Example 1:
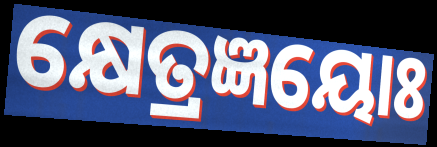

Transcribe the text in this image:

କ୍ଷେତ୍ରଜ୍ଞୟୋଃ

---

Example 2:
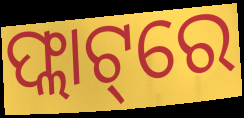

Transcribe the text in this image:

ଫ୍ଲାଟ୍‌ରେ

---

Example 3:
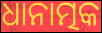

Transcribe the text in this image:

ଧାନାତ୍ମକ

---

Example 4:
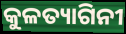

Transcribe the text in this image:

କୁଳତ୍ୟାଗିନୀ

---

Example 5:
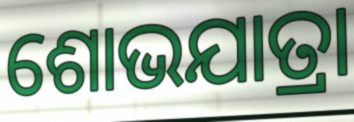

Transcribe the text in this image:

ଶୋଭଯାତ୍ରା